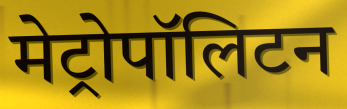
मेट्रोपॉलिटन